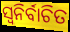
ସ୍ବନିର୍ବାଚିତ